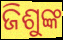
ଜିଶୁଙ୍କ